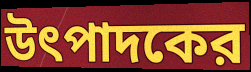
উৎপাদকের